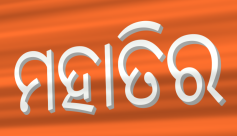
ମହାତିର